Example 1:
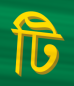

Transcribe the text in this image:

টি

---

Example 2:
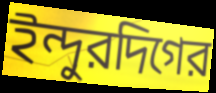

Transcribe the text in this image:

ইন্দুরদিগের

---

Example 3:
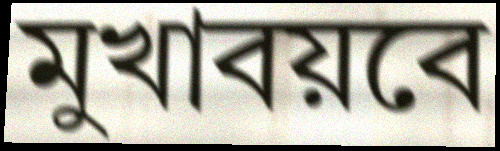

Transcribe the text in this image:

মুখাবয়বে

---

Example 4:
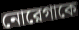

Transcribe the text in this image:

নোরেগাকে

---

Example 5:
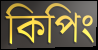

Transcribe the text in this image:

কিপিং